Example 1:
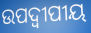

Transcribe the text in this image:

ଉପଦ୍ଵୀପୀୟ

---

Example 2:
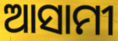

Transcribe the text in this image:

ଆସାମୀ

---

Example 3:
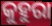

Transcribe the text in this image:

କୁହୁରା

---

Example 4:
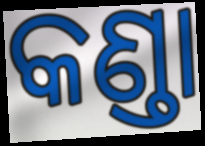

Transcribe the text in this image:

କଣ୍ଡା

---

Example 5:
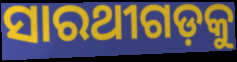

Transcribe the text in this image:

ସାରଥୀଗଡ଼କୁ